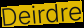
Deirdre